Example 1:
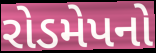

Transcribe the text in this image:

રોડમેપનો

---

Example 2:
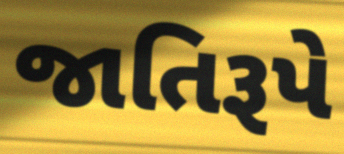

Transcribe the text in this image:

જાતિરૂપે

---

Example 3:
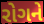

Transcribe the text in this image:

રોગને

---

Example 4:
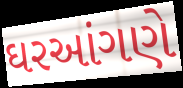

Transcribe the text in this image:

ઘરઆંગણે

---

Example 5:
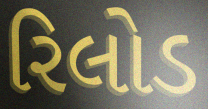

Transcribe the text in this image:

રિલોડ